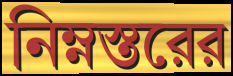
নিম্নস্তরের